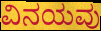
ವಿನಯವು